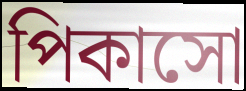
পিকাসো